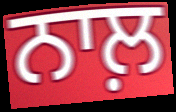
ਨਾਲ਼